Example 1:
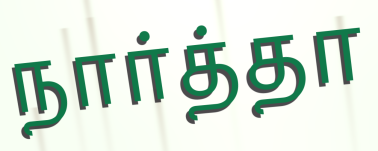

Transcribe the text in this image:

நார்த்தா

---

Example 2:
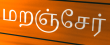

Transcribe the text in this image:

மறஞ்சேர்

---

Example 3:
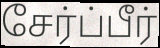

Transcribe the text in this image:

சேர்ப்பீர்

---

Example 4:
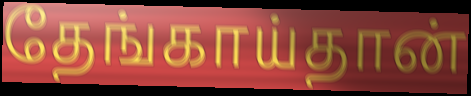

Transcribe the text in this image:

தேங்காய்தான்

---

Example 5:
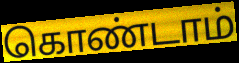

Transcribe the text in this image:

கொண்டாம்